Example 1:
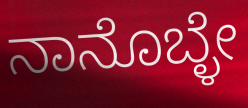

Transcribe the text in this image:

ನಾನೊಬ್ಳೇ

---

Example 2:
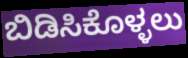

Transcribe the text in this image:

ಬಿಡಿಸಿಕೊಳ್ಳಲು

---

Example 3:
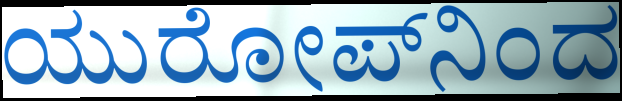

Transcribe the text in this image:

ಯುರೋಪ್‌ನಿಂದ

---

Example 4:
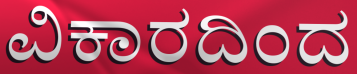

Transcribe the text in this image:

ವಿಕಾರದಿಂದ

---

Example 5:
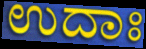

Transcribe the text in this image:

ಉದಾಃ